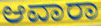
ಆವಾರಾ